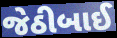
જેઠીબાઈ